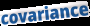
covariance